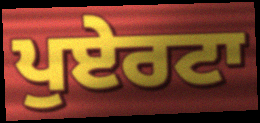
ਪੁਏਰਟਾ